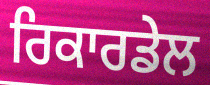
ਰਿਕਾਰਡੇਲ